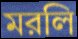
মরলি